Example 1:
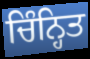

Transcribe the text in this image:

ਚਿੰਨ੍ਹਿਤ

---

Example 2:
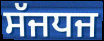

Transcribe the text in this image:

ਸੱਜਧਜ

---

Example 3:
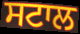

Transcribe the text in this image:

ਸਟਾਲ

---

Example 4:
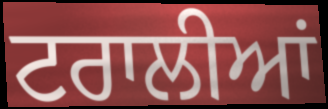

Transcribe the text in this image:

ਟਰਾਲੀਆਂ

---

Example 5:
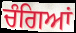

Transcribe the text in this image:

ਚੰਗਿਆਂ